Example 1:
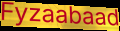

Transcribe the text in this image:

Fyzaabaad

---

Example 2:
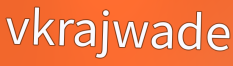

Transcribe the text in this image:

vkrajwade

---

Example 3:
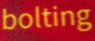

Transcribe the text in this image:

bolting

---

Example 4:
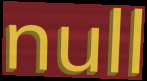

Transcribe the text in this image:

null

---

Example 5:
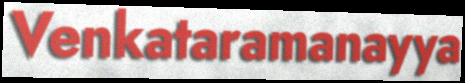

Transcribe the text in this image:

Venkataramanayya